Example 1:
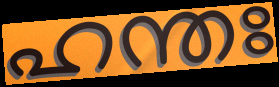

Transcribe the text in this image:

ഹന്തഃ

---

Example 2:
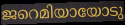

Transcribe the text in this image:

ജറെമിയായോടു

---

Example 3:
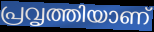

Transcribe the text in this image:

പ്രവൃത്തിയാണ്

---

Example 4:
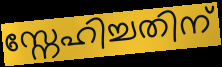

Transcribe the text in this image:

സ്നേഹിച്ചതിന്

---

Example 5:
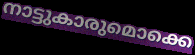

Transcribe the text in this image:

നാട്ടുകാരുമൊക്കെ